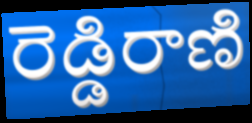
రెడ్డిరాణి